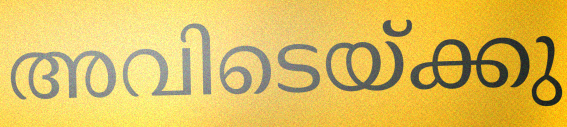
അവിടെയ്ക്കു